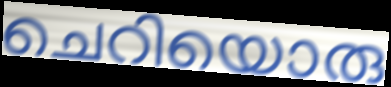
ചെറിയൊരു